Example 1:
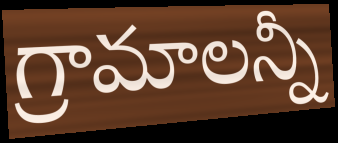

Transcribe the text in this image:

గ్రామాలన్నీ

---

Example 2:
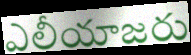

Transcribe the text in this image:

ఎలీయాజరు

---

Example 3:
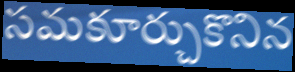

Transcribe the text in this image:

సమకూర్చుకొనిన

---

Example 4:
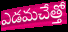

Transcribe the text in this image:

ఎడమచేత్తో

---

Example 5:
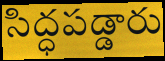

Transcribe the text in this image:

సిద్ధపడ్డారు